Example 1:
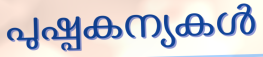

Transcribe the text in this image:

പുഷ്പകന്യകൾ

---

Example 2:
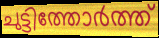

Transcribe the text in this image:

ചുട്ടിത്തോർത്ത്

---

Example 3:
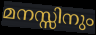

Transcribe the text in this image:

മനസ്സിനും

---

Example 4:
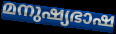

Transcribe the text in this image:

മനുഷ്യഭാഷ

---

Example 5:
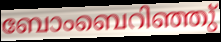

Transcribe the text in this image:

ബോംബെറിഞ്ഞു്